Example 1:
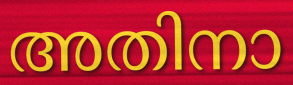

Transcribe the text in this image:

അതിനാ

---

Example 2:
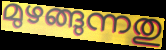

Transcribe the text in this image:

മുഴങ്ങുന്നതു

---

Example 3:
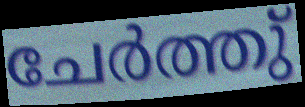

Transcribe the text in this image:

ചേർത്തു്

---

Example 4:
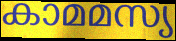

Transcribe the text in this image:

കാമമസ്യ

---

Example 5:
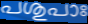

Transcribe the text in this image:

പശുപാഃ